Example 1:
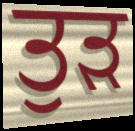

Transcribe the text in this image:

ਤੁੜ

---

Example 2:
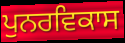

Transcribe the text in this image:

ਪੁਨਰਵਿਕਾਸ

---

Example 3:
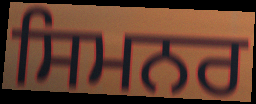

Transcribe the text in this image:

ਸਿਮਨਰ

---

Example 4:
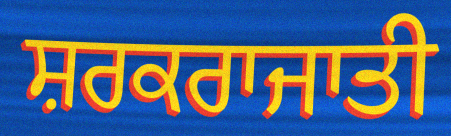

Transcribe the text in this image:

ਸ਼ਰਕਰਾਜਾਤੀ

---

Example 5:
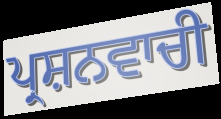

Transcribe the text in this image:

ਪ੍ਰਸ਼ਨਵਾਚੀ